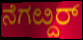
ನೆಗೞ್ದರ್